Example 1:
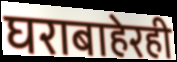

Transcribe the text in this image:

घराबाहेरही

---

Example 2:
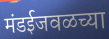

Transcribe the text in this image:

मंडईजवळच्या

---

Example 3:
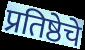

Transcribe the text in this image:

प्रतिष्ठेचे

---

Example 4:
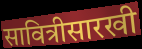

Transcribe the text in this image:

सावित्रीसारखी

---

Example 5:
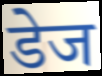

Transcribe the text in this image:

डेज